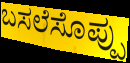
ಬಸಲೆಸೊಪ್ಪು